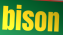
bison